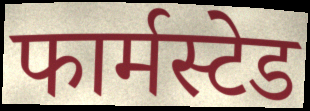
फार्मस्टेड